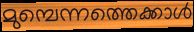
മുമ്പെന്നത്തെക്കാൾ